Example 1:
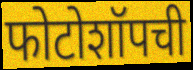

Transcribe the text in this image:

फोटोशॉपची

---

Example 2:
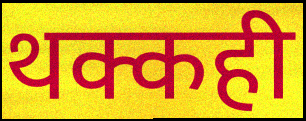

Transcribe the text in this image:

थक्कही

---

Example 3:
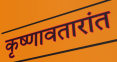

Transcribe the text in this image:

कृष्णावतारांत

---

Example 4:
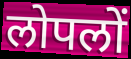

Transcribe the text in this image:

लोपलों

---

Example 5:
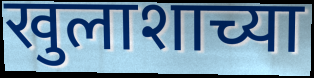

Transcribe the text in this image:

खुलाशाच्या